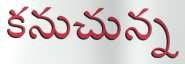
కనుచున్న